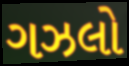
ગઝલો